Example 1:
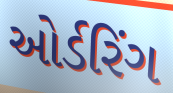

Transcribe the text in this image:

ઓર્ડરિંગ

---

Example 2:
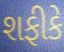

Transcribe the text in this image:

શફીકે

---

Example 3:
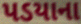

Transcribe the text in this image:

પડયાના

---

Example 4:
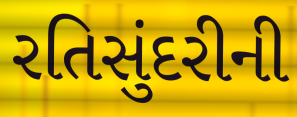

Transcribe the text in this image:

રતિસુંદરીની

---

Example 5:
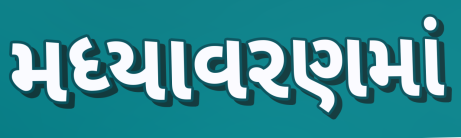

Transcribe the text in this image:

મધ્યાવરણમાં